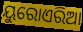
ୟୁରୋଏରିଆ